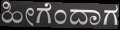
ಹೀಗೆಂದಾಗ